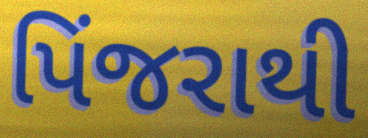
પિંજરાથી